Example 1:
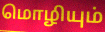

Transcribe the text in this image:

மொழியும்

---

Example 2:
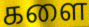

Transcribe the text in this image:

களை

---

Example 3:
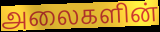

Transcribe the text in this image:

அலைகளின்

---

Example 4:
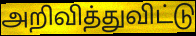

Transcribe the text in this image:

அறிவித்துவிட்டு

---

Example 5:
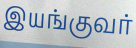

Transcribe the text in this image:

இயங்குவர்